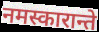
नमस्कारान्ते